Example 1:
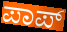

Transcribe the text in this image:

ಪಾಪ್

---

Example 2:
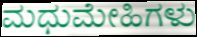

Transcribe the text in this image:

ಮಧುಮೇಹಿಗಳು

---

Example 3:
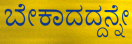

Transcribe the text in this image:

ಬೇಕಾದದ್ದನ್ನೇ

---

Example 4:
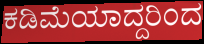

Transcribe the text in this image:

ಕಡಿಮೆಯಾದ್ದರಿಂದ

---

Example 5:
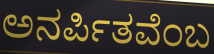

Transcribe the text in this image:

ಅನರ್ಪಿತವೆಂಬ